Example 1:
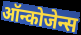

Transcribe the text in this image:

ऑन्कोजेन्स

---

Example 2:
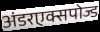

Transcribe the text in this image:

अंडरएक्सपोज्ड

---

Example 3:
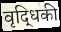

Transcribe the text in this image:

वृद्धिकी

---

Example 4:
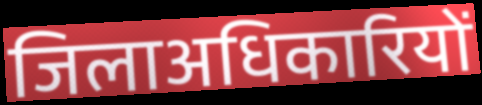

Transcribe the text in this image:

जिलाअधिकारियों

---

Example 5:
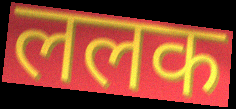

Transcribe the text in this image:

ललक